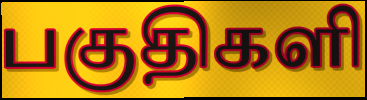
பகுதிகளி